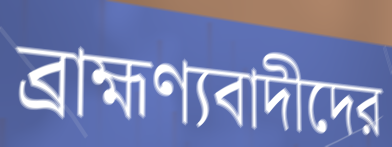
ব্রাহ্মণ্যবাদীদের